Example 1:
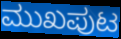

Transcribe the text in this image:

ಮುಖಪುಟ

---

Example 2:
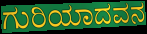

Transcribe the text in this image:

ಗುರಿಯಾದವನ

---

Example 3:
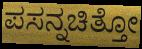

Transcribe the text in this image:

ಪಸನ್ನಚಿತ್ತೋ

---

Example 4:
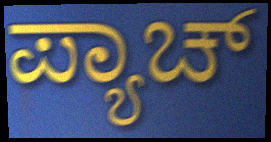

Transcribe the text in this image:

ಪ್ಯಾಚ್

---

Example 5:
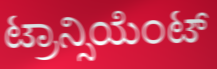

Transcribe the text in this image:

ಟ್ರಾನ್ಸಿಯೆಂಟ್